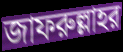
জাফরুল্লাহর